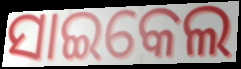
ସାଇକେଲ